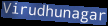
Virudhunagar